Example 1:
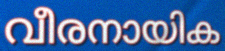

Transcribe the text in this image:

വീരനായിക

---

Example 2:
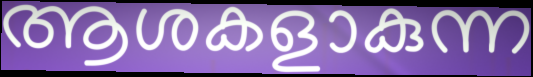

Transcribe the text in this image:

ആശകളാകുന്ന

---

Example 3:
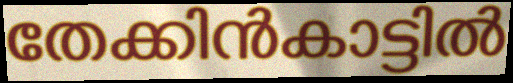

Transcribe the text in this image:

തേക്കിൻകാട്ടിൽ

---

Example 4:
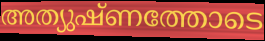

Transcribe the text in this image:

അത്യുഷ്ണത്തോടെ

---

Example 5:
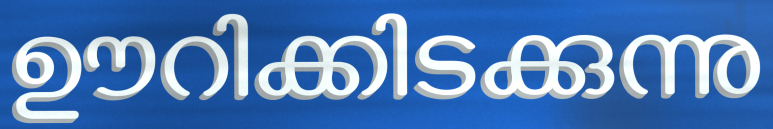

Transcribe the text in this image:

ഊറിക്കിടക്കുന്നു